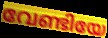
വേണ്ടിയേ